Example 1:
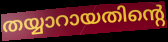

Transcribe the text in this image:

തയ്യാറായതിന്റെ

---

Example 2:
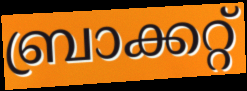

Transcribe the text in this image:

ബ്രാക്കറ്റ്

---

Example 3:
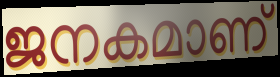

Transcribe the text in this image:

ജനകമാണ്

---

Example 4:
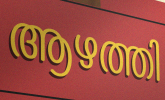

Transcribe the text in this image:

ആഴത്തി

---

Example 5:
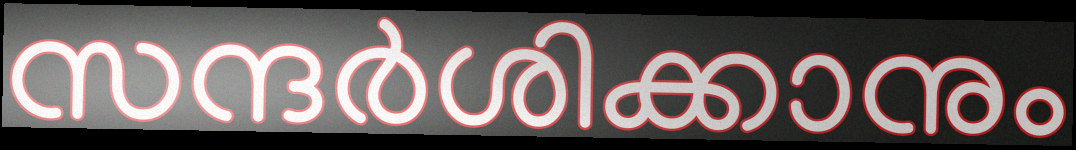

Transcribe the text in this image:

സന്ദർശിക്കാനും